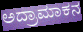
ಅದ್ರಾಮಾಕನ